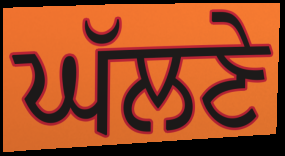
ਘੱਲਣੇ